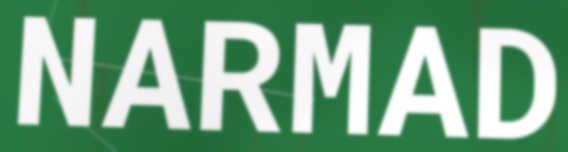
NARMAD